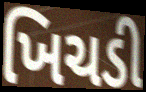
ખિચડી